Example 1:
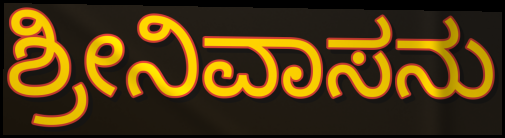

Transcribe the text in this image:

ಶ್ರೀನಿವಾಸನು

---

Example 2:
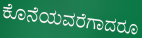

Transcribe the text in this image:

ಕೊನೆಯವರೆಗಾದರೂ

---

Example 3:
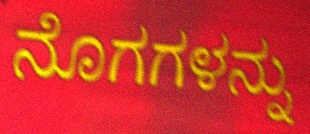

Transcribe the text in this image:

ನೊಗಗಳನ್ನು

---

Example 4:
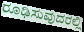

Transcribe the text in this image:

ರೂಢಿಸುವುದರಲ್ಲಿ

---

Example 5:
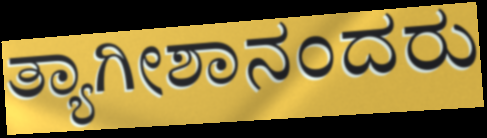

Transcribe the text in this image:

ತ್ಯಾಗೀಶಾನಂದರು